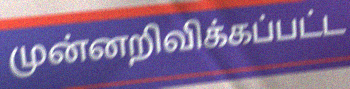
முன்னறிவிக்கப்பட்ட